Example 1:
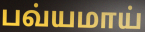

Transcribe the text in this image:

பவ்யமாய்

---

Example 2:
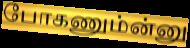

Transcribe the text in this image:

போகணும்ன்னு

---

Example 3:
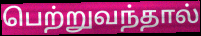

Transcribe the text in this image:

பெற்றுவந்தால்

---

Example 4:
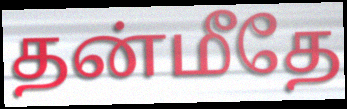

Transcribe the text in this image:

தன்மீதே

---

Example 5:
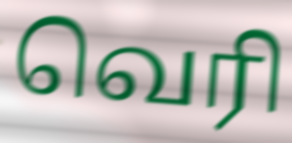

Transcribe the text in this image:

வெரி